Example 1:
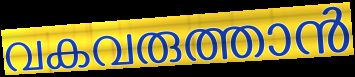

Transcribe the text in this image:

വകവരുത്താൻ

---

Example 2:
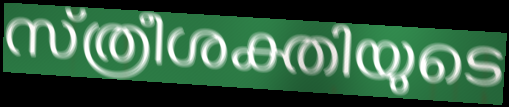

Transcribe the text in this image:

സ്‌ത്രീശക്തിയുടെ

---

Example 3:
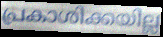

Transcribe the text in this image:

പ്രകാശിക്കയില്ല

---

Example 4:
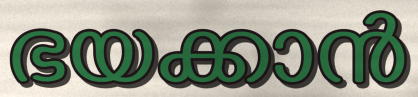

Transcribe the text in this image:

ഭയക്കാൻ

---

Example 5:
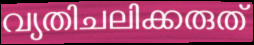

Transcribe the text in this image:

വ്യതിചലിക്കരുത്